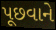
પૂછવાને